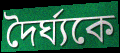
দৈর্ঘ্যকে